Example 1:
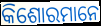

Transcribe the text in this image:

କିଶୋରମାନେ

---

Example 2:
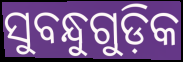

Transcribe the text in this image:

ସୁବନ୍ଧୁଗୁଡ଼ିକ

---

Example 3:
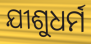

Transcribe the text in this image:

ଯୀଶୁଧର୍ମ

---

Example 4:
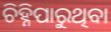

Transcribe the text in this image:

ଚିହ୍ନିପାରୁଥିବା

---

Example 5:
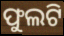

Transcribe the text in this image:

ଫୁଲଟି